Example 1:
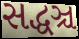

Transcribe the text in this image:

સદ્ધઞ્ચ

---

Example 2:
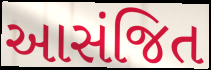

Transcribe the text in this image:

આસંજિત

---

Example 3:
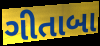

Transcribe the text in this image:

ગીતાબા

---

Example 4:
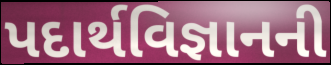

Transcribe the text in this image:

પદાર્થવિજ્ઞાનની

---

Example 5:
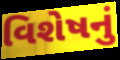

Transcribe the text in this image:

વિશેષનું